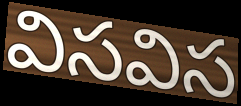
విసవిస